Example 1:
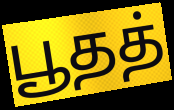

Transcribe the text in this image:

பூதத்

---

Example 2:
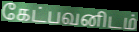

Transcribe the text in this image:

கேட்பவனிடம்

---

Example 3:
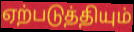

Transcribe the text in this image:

ஏற்படுத்தியும்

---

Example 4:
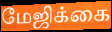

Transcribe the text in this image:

மேஜிக்கை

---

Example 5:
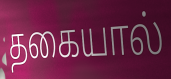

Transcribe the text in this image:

தகையால்